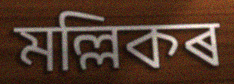
মল্লিকৰ